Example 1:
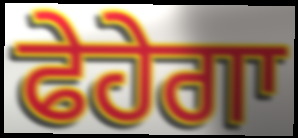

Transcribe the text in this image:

ਫੇਹੇਗਾ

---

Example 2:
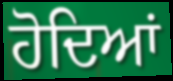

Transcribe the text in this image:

ਹੋਦਿਆਂ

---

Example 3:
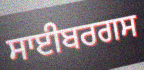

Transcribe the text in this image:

ਸਾਈਬਰਗਸ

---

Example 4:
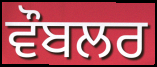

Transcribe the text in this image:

ਵੌਬਲਰ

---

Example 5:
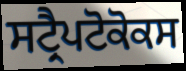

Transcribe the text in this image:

ਸਟ੍ਰੈਪਟੋਕੋਕਸ